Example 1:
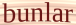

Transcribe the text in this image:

bunlar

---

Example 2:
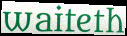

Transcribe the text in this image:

waiteth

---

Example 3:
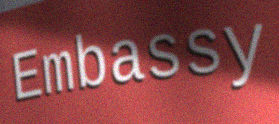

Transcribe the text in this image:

Embassy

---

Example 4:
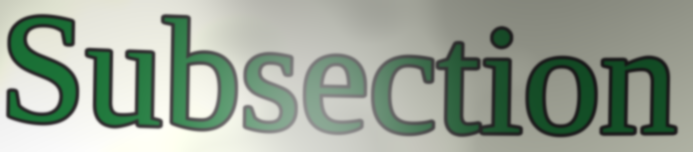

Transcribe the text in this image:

Subsection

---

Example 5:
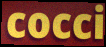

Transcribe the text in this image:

cocci